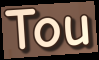
Tou